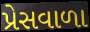
પ્રેસવાળા